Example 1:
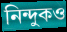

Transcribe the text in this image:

নিন্দুকও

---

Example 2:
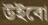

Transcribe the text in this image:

উইবো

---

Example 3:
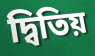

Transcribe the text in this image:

দ্বিতিয়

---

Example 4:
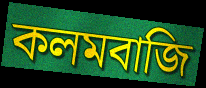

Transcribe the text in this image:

কলমবাজি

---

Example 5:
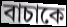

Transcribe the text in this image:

বাচাকে